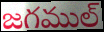
జగముల్